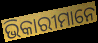
ଭିକାରୀମାନେ